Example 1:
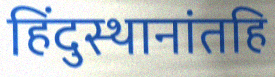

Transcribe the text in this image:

हिंदुस्थानांतहि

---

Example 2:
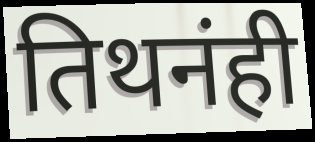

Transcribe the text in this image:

तिथनंही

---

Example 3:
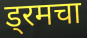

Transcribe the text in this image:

ड्रमचा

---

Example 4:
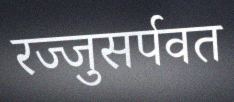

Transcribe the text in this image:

रज्जुसर्पवत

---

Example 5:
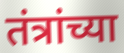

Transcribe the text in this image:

तंत्रांच्या